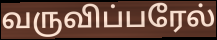
வருவிப்பரேல்